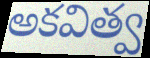
అకవిత్వ